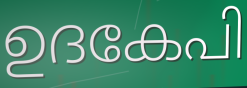
ഉദകേപി